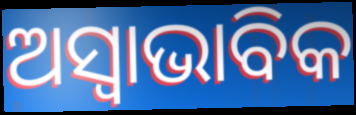
ଅସ୍ଵାଭାବିକ